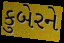
કુબેરને